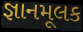
જ્ઞાનમૂલક